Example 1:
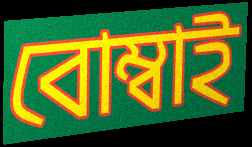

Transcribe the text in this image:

বোম্বাই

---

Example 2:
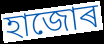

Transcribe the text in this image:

হাজোৰ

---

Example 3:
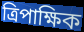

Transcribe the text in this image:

ত্ৰিপাক্ষিক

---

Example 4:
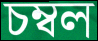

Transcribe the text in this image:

চম্বল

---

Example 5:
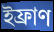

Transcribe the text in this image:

ইফ্ৰাণ